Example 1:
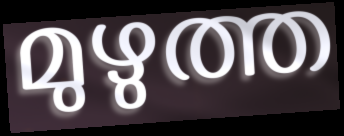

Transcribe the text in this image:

മുഴുത്ത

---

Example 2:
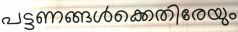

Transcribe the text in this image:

പട്ടണങ്ങൾക്കെതിരേയും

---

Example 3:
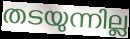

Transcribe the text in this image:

തടയുന്നില്ല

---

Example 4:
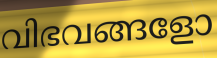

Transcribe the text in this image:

വിഭവങ്ങളോ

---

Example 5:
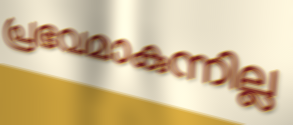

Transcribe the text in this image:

പ്രഭവമാകുന്നില്ല